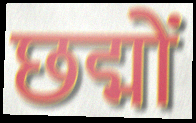
छद्मों